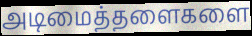
அடிமைத்தளைகளை